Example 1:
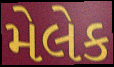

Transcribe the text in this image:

મેલેક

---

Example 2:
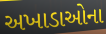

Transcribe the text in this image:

અખાડાઓના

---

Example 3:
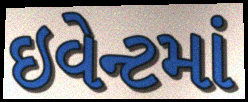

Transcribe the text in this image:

ઇવેન્ટમાં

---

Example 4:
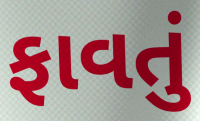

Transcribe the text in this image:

ફાવતું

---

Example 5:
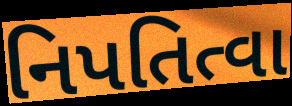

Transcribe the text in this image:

નિપતિત્વા